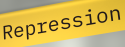
Repression